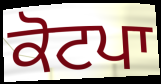
ਕੋਟਪਾ